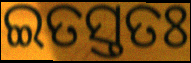
ଇତସ୍ତତଃ